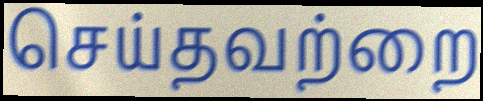
செய்தவற்றை